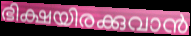
ഭിക്ഷയിരക്കുവാൻ